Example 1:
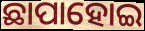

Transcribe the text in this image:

ଛାପାହୋଇ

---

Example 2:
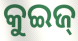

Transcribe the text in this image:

କୁଇଜ୍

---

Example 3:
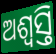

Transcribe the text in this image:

ଅଶ୍ୱସ୍ତି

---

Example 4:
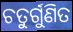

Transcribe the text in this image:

ଚତୁର୍ଗୁଣିତ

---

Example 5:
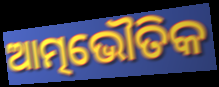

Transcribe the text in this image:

ଆତ୍ମଭୌତିକ